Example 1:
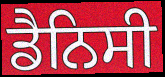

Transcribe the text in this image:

ਡੈਨਿਸੀ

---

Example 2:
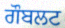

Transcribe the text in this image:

ਗੌਬਲਟ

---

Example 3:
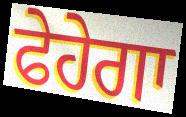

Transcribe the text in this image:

ਫੇਹੇਗਾ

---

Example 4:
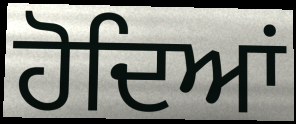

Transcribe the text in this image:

ਹੋਦਿਆਂ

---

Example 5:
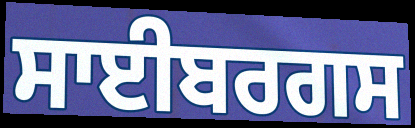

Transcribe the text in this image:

ਸਾਈਬਰਗਸ